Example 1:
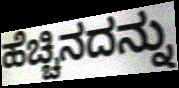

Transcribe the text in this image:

ಹೆಚ್ಚಿನದನ್ನು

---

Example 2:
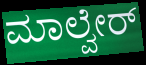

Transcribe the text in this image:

ಮಾಲ್ವೇರ್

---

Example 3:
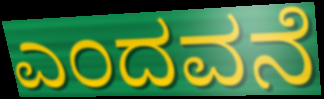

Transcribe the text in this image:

ಎಂದವನೆ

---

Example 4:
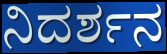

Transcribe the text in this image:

ನಿದರ್ಶನ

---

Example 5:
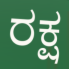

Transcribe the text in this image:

ರಕ್ಷ